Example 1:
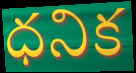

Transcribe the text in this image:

ధనిక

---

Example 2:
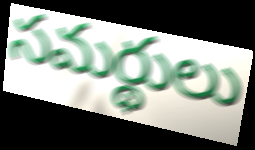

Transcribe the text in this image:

సమర్థులు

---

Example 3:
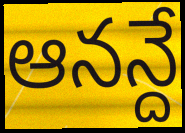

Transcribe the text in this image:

ఆనన్దే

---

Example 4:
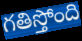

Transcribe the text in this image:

గతిస్తోంది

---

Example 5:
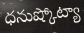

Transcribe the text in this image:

ధనుష్కోట్యా